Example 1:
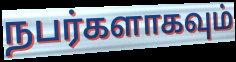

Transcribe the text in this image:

நபர்களாகவும்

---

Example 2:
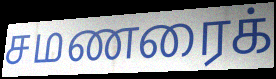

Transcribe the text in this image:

சமணரைக்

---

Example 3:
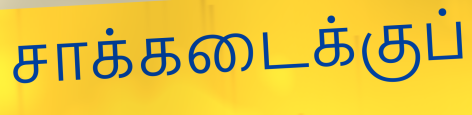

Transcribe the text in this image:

சாக்கடைக்குப்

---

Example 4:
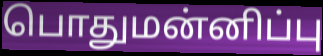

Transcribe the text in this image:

பொதுமன்னிப்பு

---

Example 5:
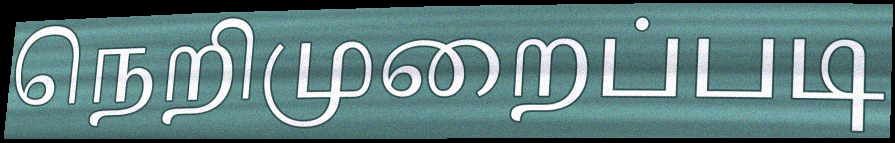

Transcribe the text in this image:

நெறிமுறைப்படி